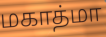
மகாத்மா